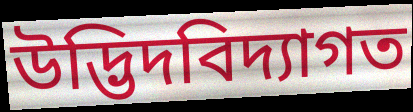
উদ্ভিদবিদ্যাগত